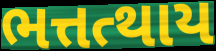
ભત્તત્થાય